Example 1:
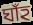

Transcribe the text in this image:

ঘাঁহ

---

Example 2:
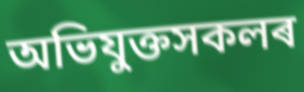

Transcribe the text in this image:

অভিযুক্তসকলৰ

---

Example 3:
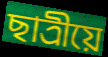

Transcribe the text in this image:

ছাত্ৰীয়ে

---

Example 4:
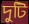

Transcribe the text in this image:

দুটি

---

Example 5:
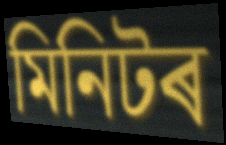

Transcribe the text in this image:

মিনিটৰ